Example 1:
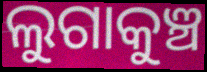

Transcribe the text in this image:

ଲୁଗାକୁଞ୍ଚ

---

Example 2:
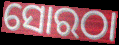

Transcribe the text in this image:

ସୋରଠା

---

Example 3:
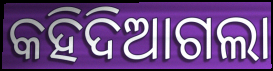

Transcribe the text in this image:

କହିଦିଆଗଲା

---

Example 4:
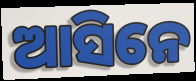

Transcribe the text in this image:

ଆସିନେ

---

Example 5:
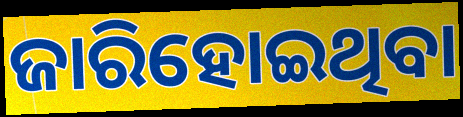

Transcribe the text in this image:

ଜାରିହୋଇଥିବା